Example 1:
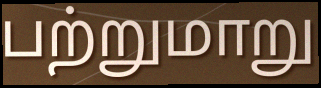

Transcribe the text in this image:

பற்றுமாறு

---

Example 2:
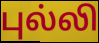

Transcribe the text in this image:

புல்லி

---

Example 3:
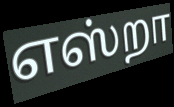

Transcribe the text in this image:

எஸ்றா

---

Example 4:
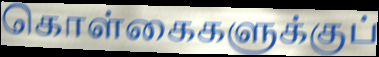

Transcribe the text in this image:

கொள்கைகளுக்குப்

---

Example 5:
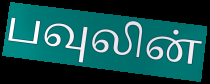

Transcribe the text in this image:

பவுலின்